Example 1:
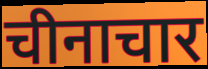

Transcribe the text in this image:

चीनाचार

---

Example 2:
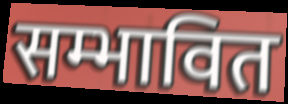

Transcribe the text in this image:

सम्भावित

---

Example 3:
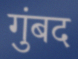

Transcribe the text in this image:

गुंबद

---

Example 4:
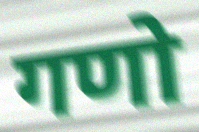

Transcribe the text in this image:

गणो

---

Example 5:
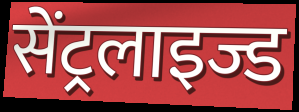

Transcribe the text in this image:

सेंट्रलाइज्ड